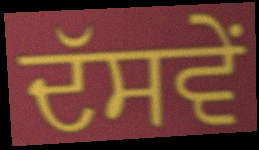
ਦੱਸਵੇਂ